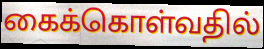
கைக்கொள்வதில்